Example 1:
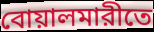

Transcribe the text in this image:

বোয়ালমারীতে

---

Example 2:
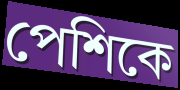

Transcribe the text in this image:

পেশিকে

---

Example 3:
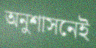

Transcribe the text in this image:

অনুশাসনেই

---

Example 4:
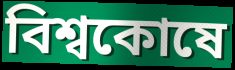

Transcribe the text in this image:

বিশ্বকোষে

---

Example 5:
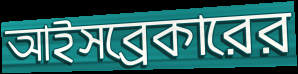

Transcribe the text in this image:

আইসব্রেকারের